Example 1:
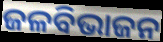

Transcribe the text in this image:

ଜଳବିଭାଜନ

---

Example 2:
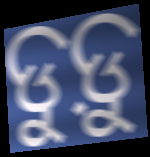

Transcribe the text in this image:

ଡୁଡ଼ୁ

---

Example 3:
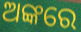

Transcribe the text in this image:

ଅଙ୍କରେ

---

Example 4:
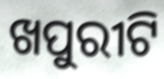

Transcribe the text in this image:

ଖପୁରୀଟି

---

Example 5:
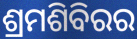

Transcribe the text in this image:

ଶ୍ରମଶିବିରର